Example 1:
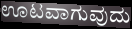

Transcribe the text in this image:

ಊಟವಾಗುವುದು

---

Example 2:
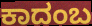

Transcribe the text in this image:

ಕಾದಂಬ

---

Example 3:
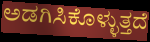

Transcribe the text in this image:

ಅಡಗಿಸಿಕೊಳ್ಳುತ್ತದೆ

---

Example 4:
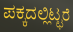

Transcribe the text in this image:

ಪಕ್ಕದಲ್ಲಿಟ್ಟರೆ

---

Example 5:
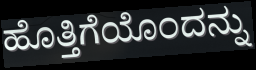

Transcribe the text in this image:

ಹೊತ್ತಿಗೆಯೊಂದನ್ನು